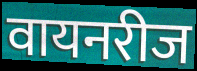
वायनरीज